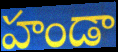
హండా